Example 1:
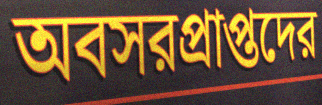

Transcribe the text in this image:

অবসরপ্রাপ্তদের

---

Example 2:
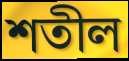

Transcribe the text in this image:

শতীল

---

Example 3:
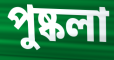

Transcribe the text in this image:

পুষ্কলা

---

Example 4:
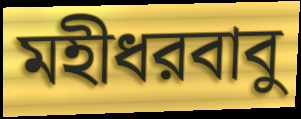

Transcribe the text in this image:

মহীধরবাবু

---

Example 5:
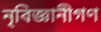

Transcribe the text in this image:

নৃবিজ্ঞানীগণ